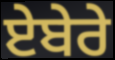
ਏਬੇਰੇ